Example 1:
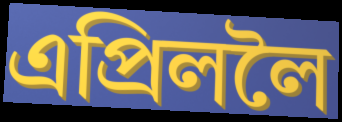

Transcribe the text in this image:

এপ্ৰিললৈ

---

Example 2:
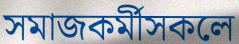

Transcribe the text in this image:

সমাজকৰ্মীসকলে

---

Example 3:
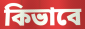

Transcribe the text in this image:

কিভাবে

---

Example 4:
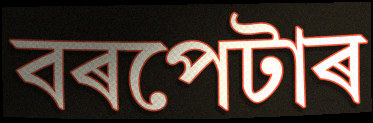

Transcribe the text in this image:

বৰপেটাৰ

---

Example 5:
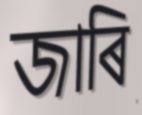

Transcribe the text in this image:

জাৰি